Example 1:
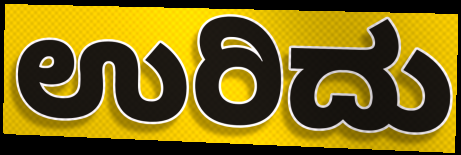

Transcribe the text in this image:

ಉರಿದು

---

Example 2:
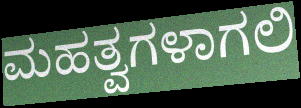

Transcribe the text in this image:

ಮಹತ್ವಗಳಾಗಲಿ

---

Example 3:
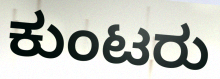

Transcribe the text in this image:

ಕುಂಟರು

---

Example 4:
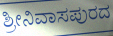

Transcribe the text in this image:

ಶ್ರೀನಿವಾಸಪುರದ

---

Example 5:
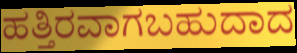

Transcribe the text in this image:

ಹತ್ತಿರವಾಗಬಹುದಾದ